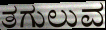
ತಗುಲುವ